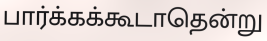
பார்க்கக்கூடாதென்று